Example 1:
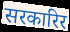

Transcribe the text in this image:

सरकारिर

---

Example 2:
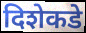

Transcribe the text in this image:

दिशेकडे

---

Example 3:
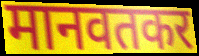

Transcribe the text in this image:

मानवतकर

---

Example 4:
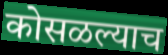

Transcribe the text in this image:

कोसळल्याच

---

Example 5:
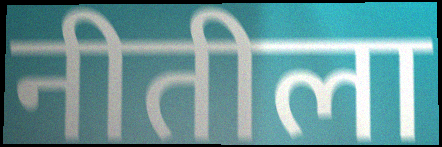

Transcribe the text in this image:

नीतीला